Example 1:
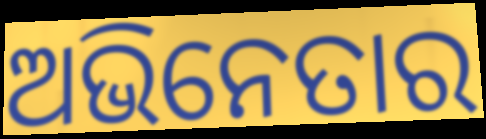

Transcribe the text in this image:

ଅଭିନେତାର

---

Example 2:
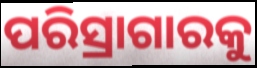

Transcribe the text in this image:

ପରିସ୍ରାଗାରକୁ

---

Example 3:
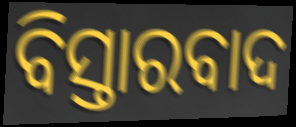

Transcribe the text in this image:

ବିସ୍ତାରବାଦ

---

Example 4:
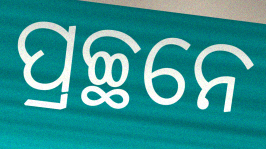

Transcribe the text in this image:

ପ୍ରଚ୍ଛନେ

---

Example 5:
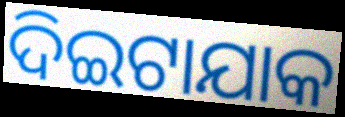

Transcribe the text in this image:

ଦିଇଟାଯାକ